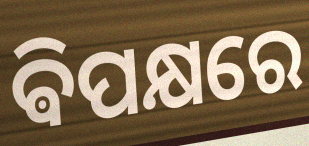
ଵିପକ୍ଷରେ